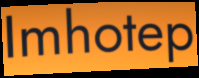
Imhotep